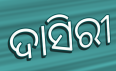
ଦାସିରୀ